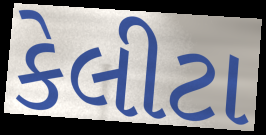
કેલીટા